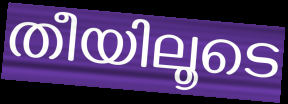
തീയിലൂടെ